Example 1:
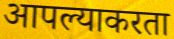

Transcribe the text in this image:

आपल्याकरता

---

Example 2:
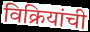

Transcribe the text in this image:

विक्रियांची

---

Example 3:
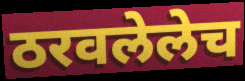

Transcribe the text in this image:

ठरवलेलेच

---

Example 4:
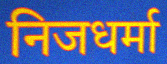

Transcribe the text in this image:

निजधर्मा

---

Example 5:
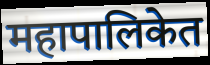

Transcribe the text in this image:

महापालिकेत